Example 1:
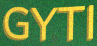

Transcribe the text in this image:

GYTI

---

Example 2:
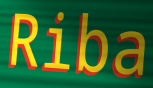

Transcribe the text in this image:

Riba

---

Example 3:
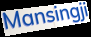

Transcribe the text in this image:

Mansingji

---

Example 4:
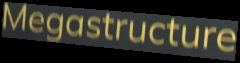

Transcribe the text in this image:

Megastructure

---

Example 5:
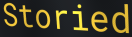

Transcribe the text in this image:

Storied